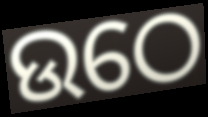
ଉଠେ